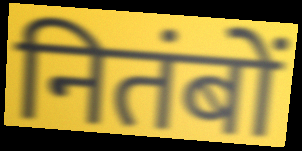
नितंबों